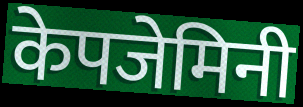
केपजेमिनी